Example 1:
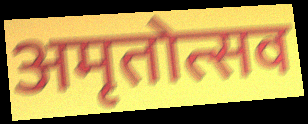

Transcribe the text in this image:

अमृतोत्सव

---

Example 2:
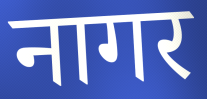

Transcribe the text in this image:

नागर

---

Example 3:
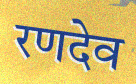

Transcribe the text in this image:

रणदेव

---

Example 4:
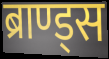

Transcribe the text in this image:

ब्राण्‍ड्स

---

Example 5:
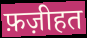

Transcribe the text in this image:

फ़ज़ीहत